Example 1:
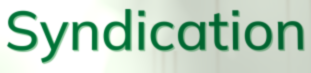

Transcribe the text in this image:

Syndication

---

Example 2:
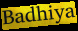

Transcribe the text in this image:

Badhiya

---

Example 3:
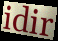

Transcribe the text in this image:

idir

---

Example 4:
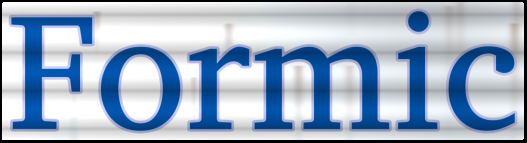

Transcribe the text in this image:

Formic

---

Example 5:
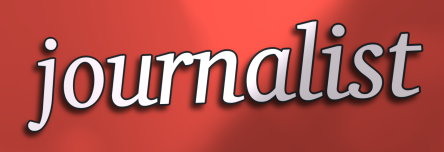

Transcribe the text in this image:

journalist